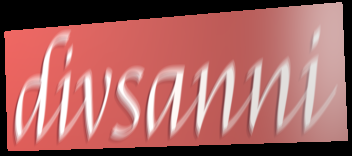
divsanni